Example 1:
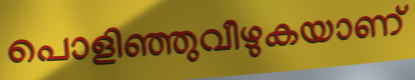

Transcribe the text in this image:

പൊളിഞ്ഞുവീഴുകയാണ്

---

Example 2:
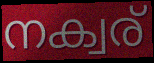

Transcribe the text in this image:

നക്വര്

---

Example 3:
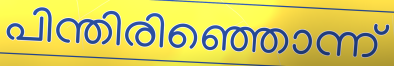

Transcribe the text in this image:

പിന്തിരിഞ്ഞൊന്ന്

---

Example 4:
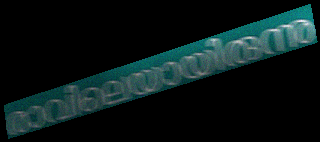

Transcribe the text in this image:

രാവിലെയായിരുന്നു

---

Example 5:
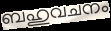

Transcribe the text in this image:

ബഹുവചനം